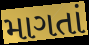
માગતાં